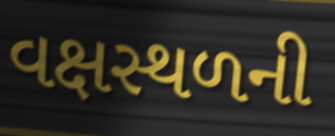
વક્ષસ્થળની